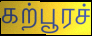
கற்பூரச்